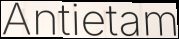
Antietam